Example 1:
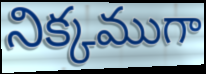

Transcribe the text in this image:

నిక్కముగా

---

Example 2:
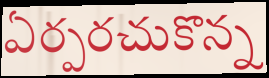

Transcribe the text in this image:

ఏర్పరచుకొన్న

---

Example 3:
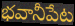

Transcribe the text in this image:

భవానీపేట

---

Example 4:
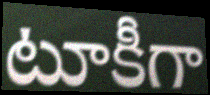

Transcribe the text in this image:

టూకీగా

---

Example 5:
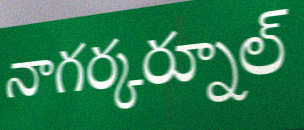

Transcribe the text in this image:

నాగర్కర్నూల్